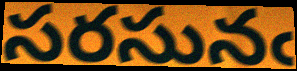
సరసునఁ